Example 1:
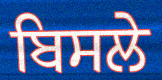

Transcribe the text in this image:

ਬਿਸਲੇ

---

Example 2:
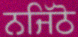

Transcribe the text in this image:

ਨਜਿੱਠੋ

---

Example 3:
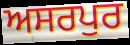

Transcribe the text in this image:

ਅਸਰਪੁਰ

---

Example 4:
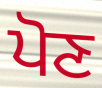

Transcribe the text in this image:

ਪੋਣ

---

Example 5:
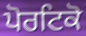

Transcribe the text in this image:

ਪੋਰਟਿਕੋ